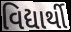
વિદ્યાર્થી